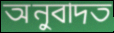
অনুবাদত